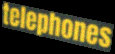
telephones